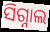
ସିଗ୍ନାଲ